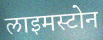
लाइमस्टोन